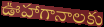
ఊహాగానాలకు